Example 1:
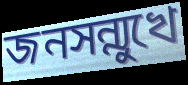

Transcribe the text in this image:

জনসন্মুখে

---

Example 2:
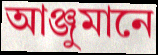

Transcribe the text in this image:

আঞ্জুমানে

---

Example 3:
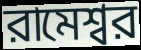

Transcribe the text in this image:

রামেশ্বর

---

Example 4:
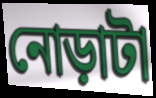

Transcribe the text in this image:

নোড়াটা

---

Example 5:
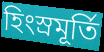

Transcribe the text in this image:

হিংস্রমূর্তি